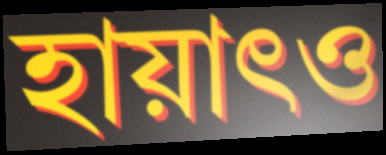
হায়াৎও